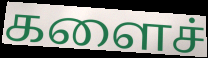
களைச்